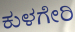
ಕುಳಗೇರಿ